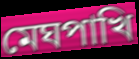
মেঘপাখি